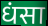
धंसा